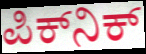
ಪಿಕ್‌ನಿಕ್